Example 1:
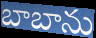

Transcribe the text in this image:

బాబాను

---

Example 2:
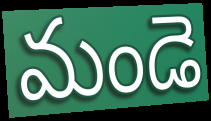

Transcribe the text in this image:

మండె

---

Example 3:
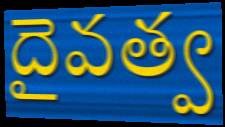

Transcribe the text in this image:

దైవత్వ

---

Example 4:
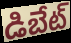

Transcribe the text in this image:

డిబేట్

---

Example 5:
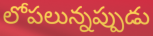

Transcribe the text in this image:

లోపలున్నప్పుడు